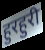
हुरहुरी